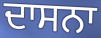
ਦਾਸਨਾ